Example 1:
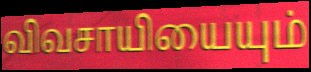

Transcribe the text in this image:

விவசாயியையும்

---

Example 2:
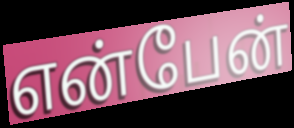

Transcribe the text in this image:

என்பேன்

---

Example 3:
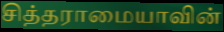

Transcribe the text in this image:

சித்தராமையாவின்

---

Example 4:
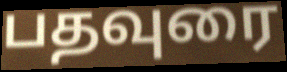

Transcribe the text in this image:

பதவுரை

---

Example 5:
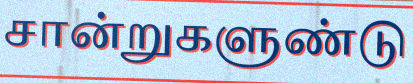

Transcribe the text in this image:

சான்றுகளுண்டு